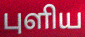
புளிய